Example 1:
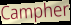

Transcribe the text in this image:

Campher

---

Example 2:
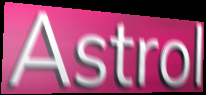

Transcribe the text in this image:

Astrol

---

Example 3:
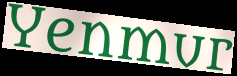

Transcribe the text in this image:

Yenmur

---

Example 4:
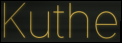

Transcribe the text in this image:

Kuthe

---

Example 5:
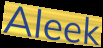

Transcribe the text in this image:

Aleek